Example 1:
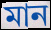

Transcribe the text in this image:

মান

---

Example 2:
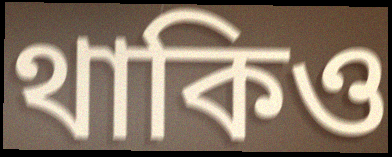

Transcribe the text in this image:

থাকিও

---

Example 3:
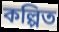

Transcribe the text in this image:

কল্পিত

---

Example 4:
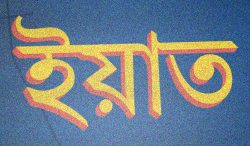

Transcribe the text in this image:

ইয়াত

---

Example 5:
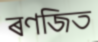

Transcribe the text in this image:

ৰণজিত